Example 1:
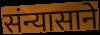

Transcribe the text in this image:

संन्यासाने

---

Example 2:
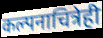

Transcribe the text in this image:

कल्पनाचित्रेही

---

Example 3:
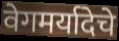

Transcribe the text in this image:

वेगमर्यादेचे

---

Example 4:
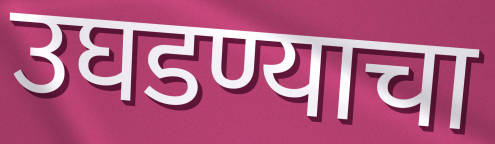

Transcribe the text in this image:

उघडण्याचा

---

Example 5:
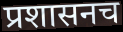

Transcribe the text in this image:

प्रशासनच